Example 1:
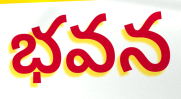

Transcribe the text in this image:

భవన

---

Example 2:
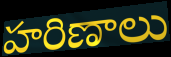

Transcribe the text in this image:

హరిణాలు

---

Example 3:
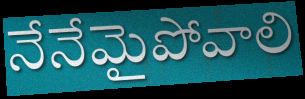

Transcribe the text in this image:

నేనేమైపోవాలి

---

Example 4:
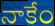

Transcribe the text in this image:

నాకేం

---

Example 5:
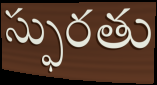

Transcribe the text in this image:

స్ఫురతు